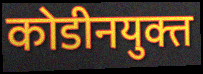
कोडीनयुक्त